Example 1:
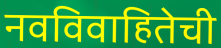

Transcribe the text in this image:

नवविवाहितेची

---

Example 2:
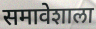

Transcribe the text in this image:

समावेशाला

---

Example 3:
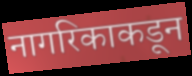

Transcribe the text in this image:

नागरिकाकडून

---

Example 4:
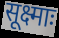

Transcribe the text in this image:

सूक्ष्माः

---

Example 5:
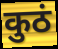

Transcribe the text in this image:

कुठं